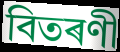
বিতৰণী